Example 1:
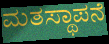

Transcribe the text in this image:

ಮತಸ್ಥಾಪನೆ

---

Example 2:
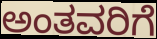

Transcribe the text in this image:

ಅಂತವರಿಗೆ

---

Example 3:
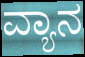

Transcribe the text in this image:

ವ್ಯಾನ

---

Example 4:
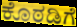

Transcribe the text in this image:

ಕೊಠಡಿಗೆ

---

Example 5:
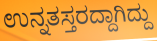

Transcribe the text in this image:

ಉನ್ನತಸ್ತರದ್ದಾಗಿದ್ದು